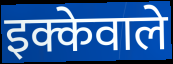
इक्केवाले